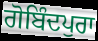
ਗੋਬਿੰਦਪੁਰਾ